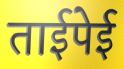
ताईपेई